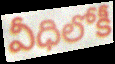
వీధిలోకీ